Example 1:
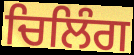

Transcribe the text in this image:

ਚਿਲਿੰਗ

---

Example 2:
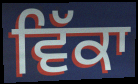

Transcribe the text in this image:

ਵਿੱਕਾ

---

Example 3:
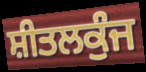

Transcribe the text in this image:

ਸ਼ੀਤਲਕੁੰਜ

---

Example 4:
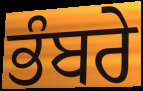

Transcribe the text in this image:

ਭੰਬਰੇ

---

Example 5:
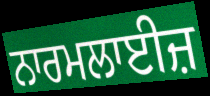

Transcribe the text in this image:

ਨਾਰਮਲਾਈਜ਼